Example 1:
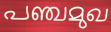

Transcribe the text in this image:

പഞ്ചമുഖ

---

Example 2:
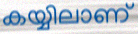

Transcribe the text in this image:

കയ്യിലാണ്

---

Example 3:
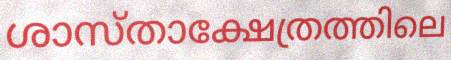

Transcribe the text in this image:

ശാസ്താക്ഷേത്രത്തിലെ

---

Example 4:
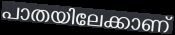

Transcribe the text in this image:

പാതയിലേക്കാണ്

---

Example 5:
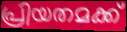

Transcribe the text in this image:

പ്രിയതമക്ക്